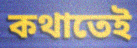
কথাতেই